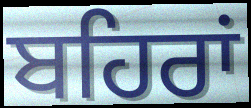
ਬਹਿਰਾਂ